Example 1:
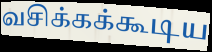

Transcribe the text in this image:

வசிக்கக்கூடிய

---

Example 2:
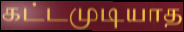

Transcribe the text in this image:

கட்டமுடியாத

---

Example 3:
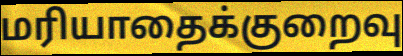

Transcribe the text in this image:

மரியாதைக்குறைவு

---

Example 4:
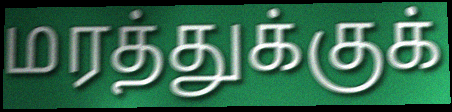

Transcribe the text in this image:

மரத்துக்குக்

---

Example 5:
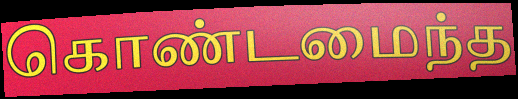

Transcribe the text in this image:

கொண்டமைந்த